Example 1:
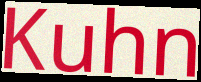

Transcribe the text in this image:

Kuhn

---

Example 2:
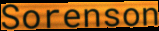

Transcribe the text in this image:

Sorenson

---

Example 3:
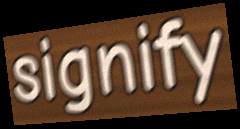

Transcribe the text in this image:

signify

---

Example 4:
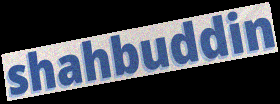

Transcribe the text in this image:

shahbuddin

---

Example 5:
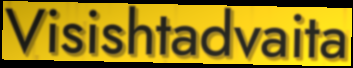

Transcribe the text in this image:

Visishtadvaita